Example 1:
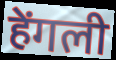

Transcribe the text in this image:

हेंगली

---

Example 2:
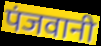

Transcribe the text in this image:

पंजवानी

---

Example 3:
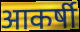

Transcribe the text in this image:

आकर्षी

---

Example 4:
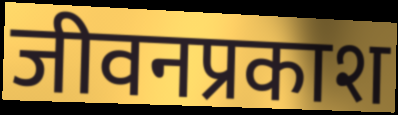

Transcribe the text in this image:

जीवनप्रकाश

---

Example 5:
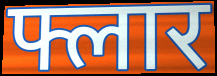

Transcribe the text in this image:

फ्लार